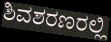
ಶಿವಶರಣರಲ್ಲಿ